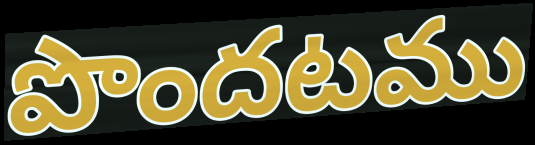
పొందటము